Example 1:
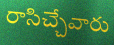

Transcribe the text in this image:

రాసిచ్చేవారు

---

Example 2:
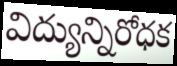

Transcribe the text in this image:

విద్యున్నిరోధక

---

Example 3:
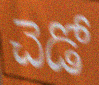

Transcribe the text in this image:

చెడో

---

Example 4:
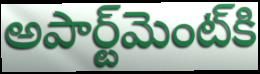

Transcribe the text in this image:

అపార్ట్‌మెంట్‌కి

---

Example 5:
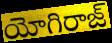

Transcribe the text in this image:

యోగిరాజ్